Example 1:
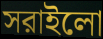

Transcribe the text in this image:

সরাইলো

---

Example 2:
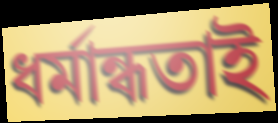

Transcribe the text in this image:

ধর্মান্ধতাই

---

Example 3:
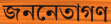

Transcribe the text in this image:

জননেতাগণ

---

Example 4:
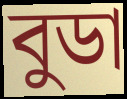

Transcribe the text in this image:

বুডা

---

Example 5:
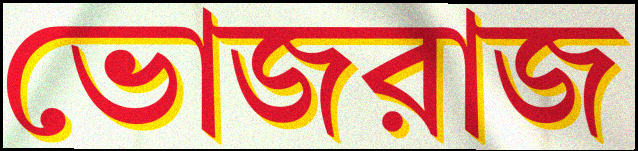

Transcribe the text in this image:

ভোজরাজ